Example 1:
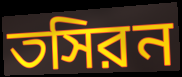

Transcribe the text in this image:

তসিরন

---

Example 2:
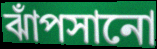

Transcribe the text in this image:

ঝাঁপসানো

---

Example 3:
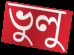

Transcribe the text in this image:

ভুলু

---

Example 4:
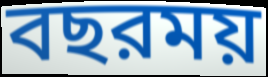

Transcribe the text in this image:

বছরময়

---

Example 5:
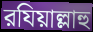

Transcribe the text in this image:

রযিয়াল্লাহু